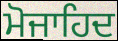
ਮੋਜਾਹਿਦ